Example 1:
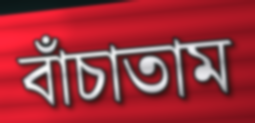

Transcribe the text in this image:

বাঁচাতাম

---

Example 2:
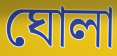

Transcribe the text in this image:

ঘোলা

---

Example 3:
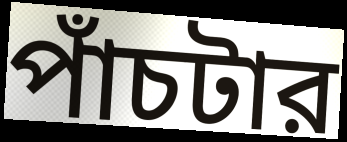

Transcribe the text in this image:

পাঁচটার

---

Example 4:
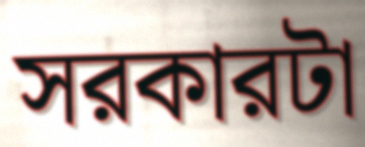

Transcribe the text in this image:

সরকারটা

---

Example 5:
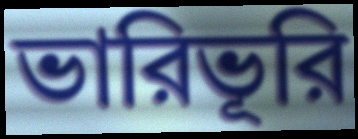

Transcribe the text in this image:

ভারিভূরি